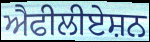
ਐਫੀਲੀਏਸ਼ਨ